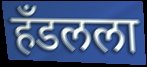
हँडलला